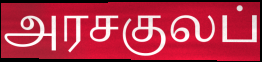
அரசகுலப்